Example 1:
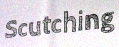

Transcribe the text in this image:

Scutching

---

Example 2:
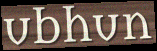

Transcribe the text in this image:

ubhun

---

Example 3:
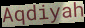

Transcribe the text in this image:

Aqdiyah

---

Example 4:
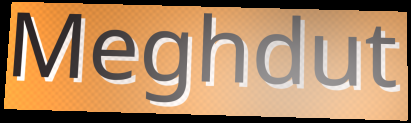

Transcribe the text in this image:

Meghdut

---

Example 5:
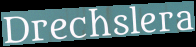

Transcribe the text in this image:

Drechslera